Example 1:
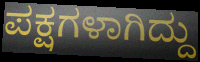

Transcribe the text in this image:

ಪಕ್ಷಗಳಾಗಿದ್ದು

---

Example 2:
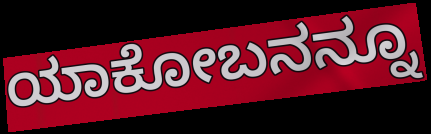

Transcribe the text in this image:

ಯಾಕೋಬನನ್ನೂ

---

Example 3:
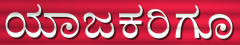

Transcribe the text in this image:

ಯಾಜಕರಿಗೂ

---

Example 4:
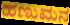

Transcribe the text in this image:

ಹಣುಮನ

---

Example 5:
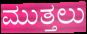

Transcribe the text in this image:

ಮುತ್ತಲು